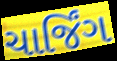
ચાર્જિંગ